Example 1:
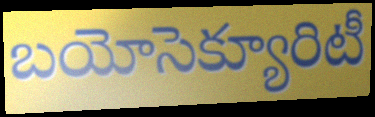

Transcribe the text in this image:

బయోసెక్యూరిటీ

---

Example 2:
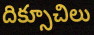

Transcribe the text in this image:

దిక్సూచిలు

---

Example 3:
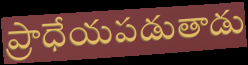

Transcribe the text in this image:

ప్రాధేయపడుతాడు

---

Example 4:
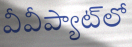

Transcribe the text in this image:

వీవీప్యాట్‌లో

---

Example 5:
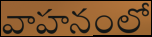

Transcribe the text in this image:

వాహనంలో